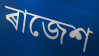
ৰাজেশ